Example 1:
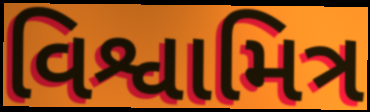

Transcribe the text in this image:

વિશ્વામિત્ર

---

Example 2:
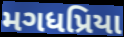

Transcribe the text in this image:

મગધપ્રિયા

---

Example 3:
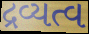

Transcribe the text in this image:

દ્રવ્યત્વ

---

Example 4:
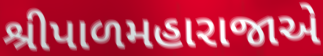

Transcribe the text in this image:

શ્રીપાળમહારાજાએ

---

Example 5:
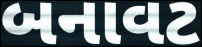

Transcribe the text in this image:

બનાવટ